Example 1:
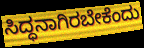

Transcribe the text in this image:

ಸಿದ್ಧನಾಗಿರಬೇಕೆಂದು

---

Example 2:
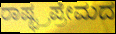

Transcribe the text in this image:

ರಾಷ್ಟ್ರಪ್ರೇಮದ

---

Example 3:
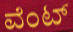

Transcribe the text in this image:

ವೆಂಟ್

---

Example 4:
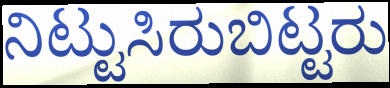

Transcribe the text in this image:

ನಿಟ್ಟುಸಿರುಬಿಟ್ಟರು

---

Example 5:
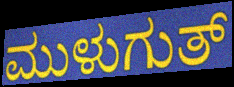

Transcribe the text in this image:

ಮುಳುಗುತ್